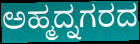
ಅಹ್ಮದ್ನಗರದ